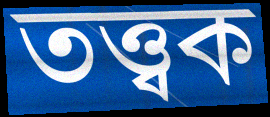
তত্ত্বক